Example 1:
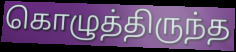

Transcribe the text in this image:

கொழுத்திருந்த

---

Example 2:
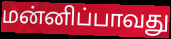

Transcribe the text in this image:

மன்னிப்பாவது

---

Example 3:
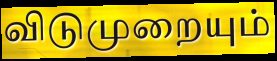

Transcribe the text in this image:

விடுமுறையும்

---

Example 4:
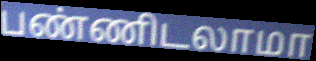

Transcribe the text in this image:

பண்ணிடலாமா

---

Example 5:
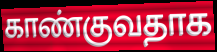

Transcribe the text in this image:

காண்குவதாக